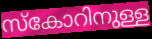
സ്കോറിനുള്ള